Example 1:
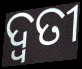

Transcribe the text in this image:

ଦ୍ଵତୀ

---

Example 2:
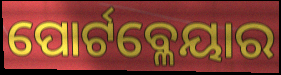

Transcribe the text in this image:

ପୋର୍ଟବ୍ଳେୟାର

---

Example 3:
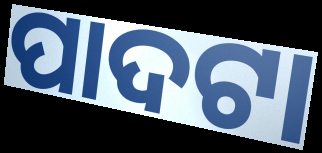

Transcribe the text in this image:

ପାଦଟା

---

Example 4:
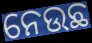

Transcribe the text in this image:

ନେଉଛ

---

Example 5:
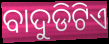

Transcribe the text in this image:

ବାଦୁଡିଟିଏ